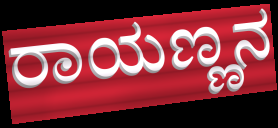
ರಾಯಣ್ಣನ